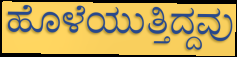
ಹೊಳೆಯುತ್ತಿದ್ದವು